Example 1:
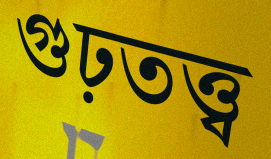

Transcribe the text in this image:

গুঢ়তত্ত্ব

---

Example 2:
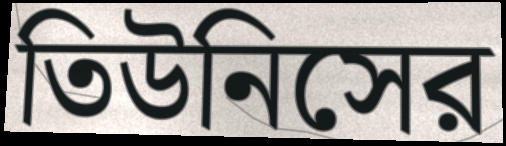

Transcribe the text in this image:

তিউনিসের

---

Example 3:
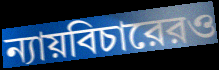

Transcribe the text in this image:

ন্যায়বিচারেরও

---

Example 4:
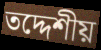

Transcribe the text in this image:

তদ্দেশীয়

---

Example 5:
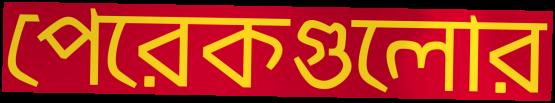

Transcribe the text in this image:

পেরেকগুলোর